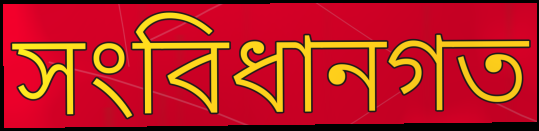
সংবিধানগত